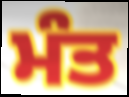
ਮੰਤ